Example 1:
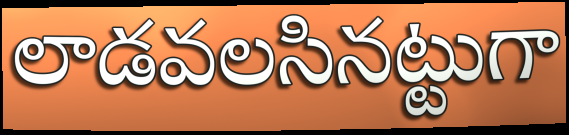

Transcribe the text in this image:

లాడవలసినట్టుగా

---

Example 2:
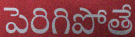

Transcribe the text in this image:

పెరిగిపోతే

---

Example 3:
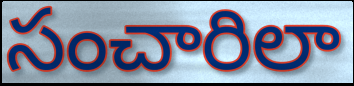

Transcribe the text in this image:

సంచారిలా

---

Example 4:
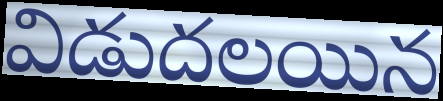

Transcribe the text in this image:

విడుదలయిన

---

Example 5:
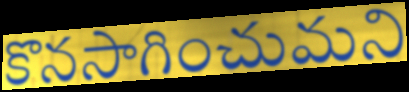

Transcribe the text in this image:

కొనసాగించుమని